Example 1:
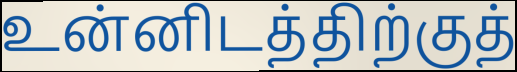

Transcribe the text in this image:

உன்னிடத்திற்குத்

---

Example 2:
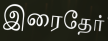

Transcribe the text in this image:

இரைதேர்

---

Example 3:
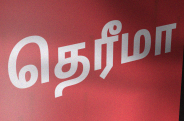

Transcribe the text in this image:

தெரீமா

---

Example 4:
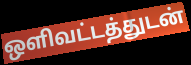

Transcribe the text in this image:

ஒளிவட்டத்துடன்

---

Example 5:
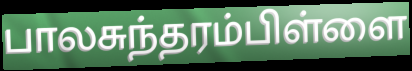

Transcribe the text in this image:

பாலசுந்தரம்பிள்ளை